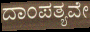
ದಾಂಪತ್ಯವೇ